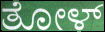
ತೋಳ್